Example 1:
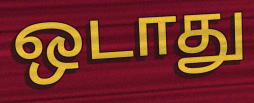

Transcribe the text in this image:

ஒடாது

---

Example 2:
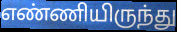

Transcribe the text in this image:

எண்ணியிருந்து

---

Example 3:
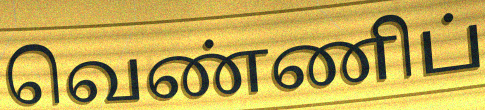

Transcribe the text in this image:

வெண்ணிப்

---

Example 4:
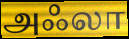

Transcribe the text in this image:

அஃலா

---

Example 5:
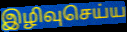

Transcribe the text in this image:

இழிவுசெய்ய